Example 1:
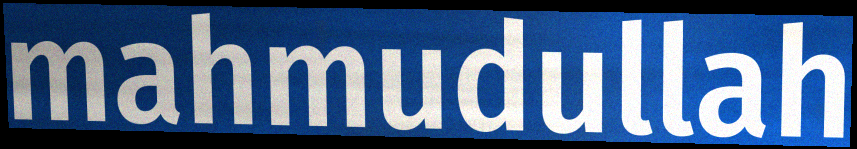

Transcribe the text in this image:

mahmudullah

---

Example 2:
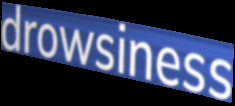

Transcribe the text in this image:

drowsiness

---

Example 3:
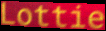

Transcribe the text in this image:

Lottie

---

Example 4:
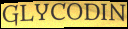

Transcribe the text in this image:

GLYCODIN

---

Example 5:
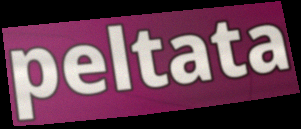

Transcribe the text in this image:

peltata